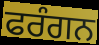
ਫਰੰਗਨ